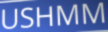
USHMM